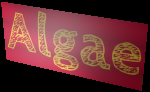
Algae